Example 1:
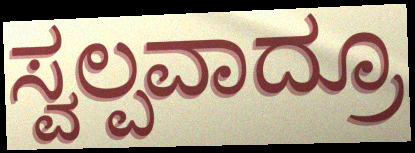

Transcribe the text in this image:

ಸ್ವಲ್ಪವಾದ್ರೂ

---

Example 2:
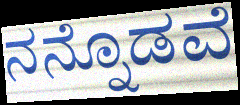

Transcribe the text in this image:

ನನ್ನೊಡವೆ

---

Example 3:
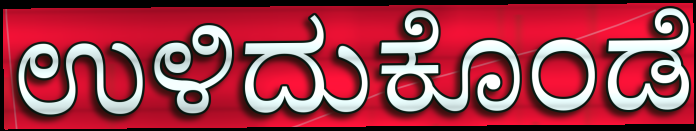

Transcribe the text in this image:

ಉಳಿದುಕೊಂಡೆ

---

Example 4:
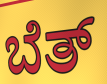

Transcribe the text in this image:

ಬೆತ್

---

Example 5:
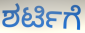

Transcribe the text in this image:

ಶರ್ಟಿಗೆ